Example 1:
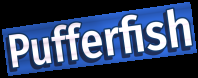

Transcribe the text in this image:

Pufferfish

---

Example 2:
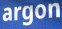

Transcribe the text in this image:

argon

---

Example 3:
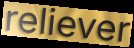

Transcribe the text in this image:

reliever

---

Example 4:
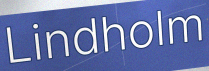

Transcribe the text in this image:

Lindholm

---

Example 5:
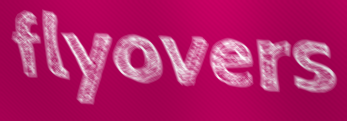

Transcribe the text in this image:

flyovers